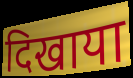
दिखाया